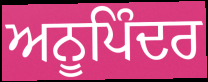
ਅਨੂਪਿੰਦਰ